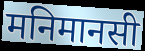
मनिमानसी